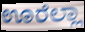
ಊರೆಲ್ಲಾ